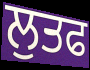
ਲੁਤਫ